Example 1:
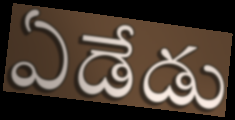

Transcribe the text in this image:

ఏడేడు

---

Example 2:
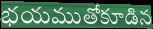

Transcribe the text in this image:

భయముతోకూడిన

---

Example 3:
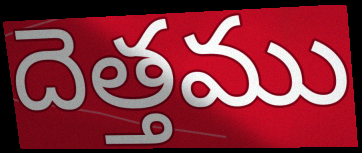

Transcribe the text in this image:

దెత్తము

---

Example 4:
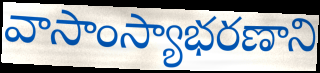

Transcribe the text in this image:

వాసాంస్యాభరణాని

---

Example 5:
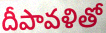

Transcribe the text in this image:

దీపావళితో